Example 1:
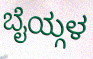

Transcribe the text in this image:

ಬೈಯ್ಗಳ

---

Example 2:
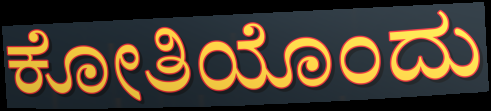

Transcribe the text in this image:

ಕೋತಿಯೊಂದು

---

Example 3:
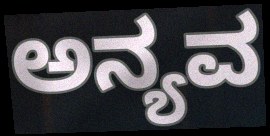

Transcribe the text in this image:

ಅನ್ಯವ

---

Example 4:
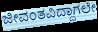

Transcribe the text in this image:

ಜೀವಂತವಿದ್ದಾಗಲೇ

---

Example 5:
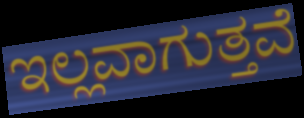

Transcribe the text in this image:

ಇಲ್ಲವಾಗುತ್ತವೆ